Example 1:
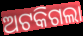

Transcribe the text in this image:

ଅଟକିଗଲା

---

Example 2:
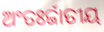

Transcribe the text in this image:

ଅଂତଃର୍ଜାତୀୟ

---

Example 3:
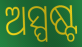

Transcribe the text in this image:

ଅସ୍ପଷ୍ଟ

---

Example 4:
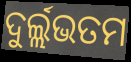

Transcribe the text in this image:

ଦୁର୍ଲ୍ଲଭତମ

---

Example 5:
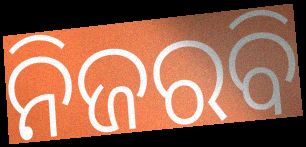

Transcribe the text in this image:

ନିଜରବି